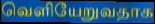
வெளியேறுவதாக